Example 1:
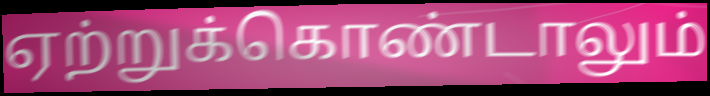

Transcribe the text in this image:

ஏற்றுக்கொண்டாலும்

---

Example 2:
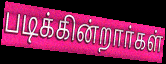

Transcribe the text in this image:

படிக்கின்றார்கள்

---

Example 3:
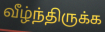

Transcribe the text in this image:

வீழ்ந்திருக்க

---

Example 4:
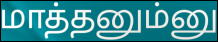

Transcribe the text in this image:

மாத்தனும்னு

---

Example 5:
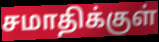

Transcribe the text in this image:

சமாதிக்குள்